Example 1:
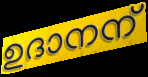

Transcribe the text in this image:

ഉദാനന്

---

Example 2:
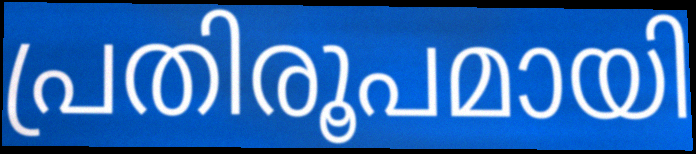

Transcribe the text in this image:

പ്രതിരൂപമായി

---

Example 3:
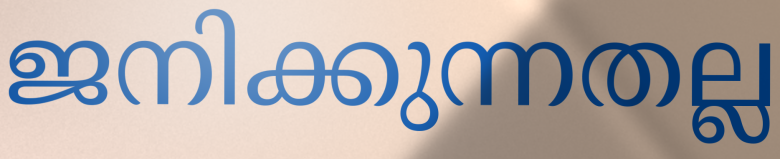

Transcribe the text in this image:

ജനിക്കുന്നതല്ല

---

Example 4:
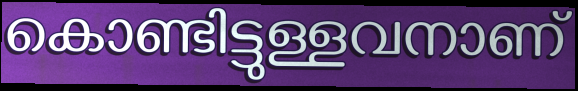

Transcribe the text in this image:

കൊണ്ടിട്ടുള്ളവനാണ്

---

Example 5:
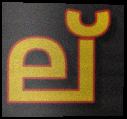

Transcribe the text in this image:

ല്